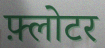
फ़्लोटर